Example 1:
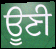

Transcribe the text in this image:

ਊਣੀ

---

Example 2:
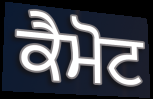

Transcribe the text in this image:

ਕੈਮੋਟ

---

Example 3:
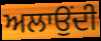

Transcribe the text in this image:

ਅਲਾਉਂਦੀ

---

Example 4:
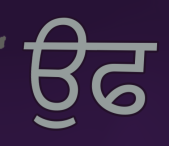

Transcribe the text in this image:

ਉਫ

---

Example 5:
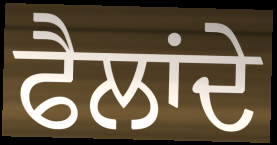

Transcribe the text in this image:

ਫੈਲਾਂਦੇ